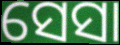
ସେସା